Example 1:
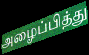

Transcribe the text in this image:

அழைப்பித்து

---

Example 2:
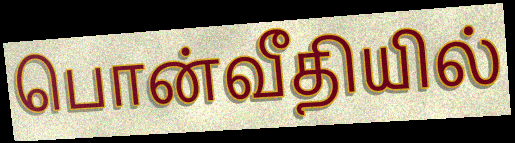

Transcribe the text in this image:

பொன்வீதியில்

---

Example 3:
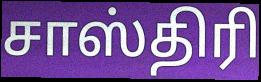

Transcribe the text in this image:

சாஸ்திரி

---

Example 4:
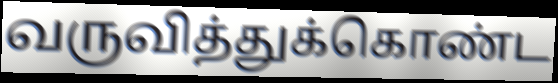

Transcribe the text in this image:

வருவித்துக்கொண்ட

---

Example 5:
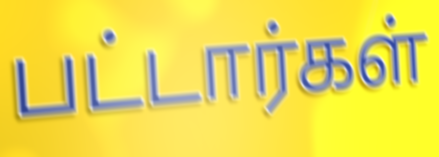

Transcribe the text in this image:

பட்டார்கள்